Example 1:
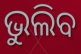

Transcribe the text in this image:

ଭୁଲିବ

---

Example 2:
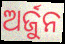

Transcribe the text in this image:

ଅର୍ଜୁନ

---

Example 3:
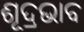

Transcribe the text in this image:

ଶୂଦ୍ରଭାବ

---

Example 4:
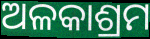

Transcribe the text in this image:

ଅଳକାଶ୍ରମ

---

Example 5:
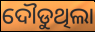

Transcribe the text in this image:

ଦୌଡୁଥିଲା